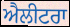
ਐਲੀਟਰਾ